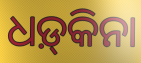
ଧଡ଼୍‍କିନା